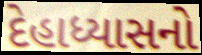
દેહાધ્યાસનો